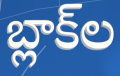
బ్లాక్‌ల